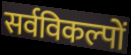
सर्वविकल्पों